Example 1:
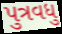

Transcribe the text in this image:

પુત્રવધુ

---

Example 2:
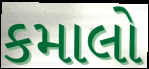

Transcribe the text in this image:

કમાલો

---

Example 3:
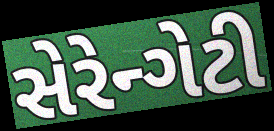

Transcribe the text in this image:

સેરેન્ગેટી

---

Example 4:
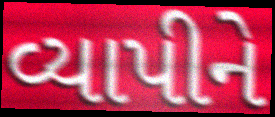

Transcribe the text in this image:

વ્યાપીને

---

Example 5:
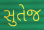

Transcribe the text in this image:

સુતેજ